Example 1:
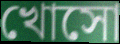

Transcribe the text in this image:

খোসো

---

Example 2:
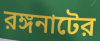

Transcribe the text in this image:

রঙ্গনাটের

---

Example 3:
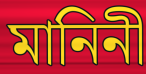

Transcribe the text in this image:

মানিনী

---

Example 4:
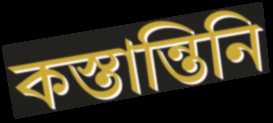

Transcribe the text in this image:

কস্তান্তিনি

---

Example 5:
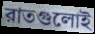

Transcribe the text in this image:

রাতগুলোই